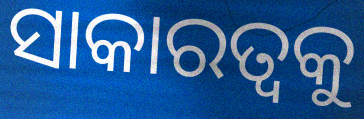
ସାକାରତ୍ଵକୁ